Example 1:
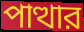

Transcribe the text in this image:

পাত্থার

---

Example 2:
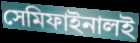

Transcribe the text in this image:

সেমিফাইনালই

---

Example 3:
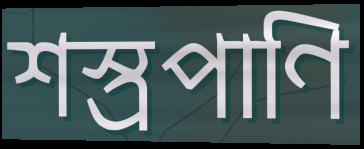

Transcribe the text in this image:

শস্ত্রপাণি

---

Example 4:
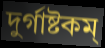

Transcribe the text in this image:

দুর্গাষ্টকম্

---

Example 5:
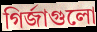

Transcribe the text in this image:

গির্জাগুলো